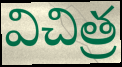
విచిత్ర